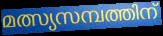
മത്സ്യസമ്പത്തിന്